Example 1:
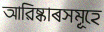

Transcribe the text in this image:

আৱিষ্কাৰসমূহে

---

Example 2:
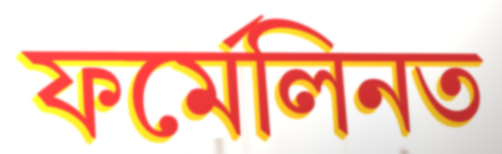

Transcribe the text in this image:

ফৰ্মেলিনত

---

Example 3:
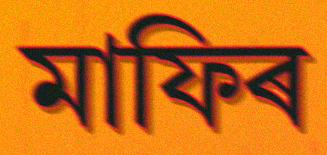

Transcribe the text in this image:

মাফিৰ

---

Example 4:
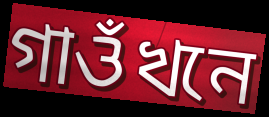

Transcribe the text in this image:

গাওঁখনে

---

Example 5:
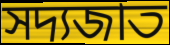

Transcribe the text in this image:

সদ্যজাত